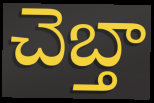
చెబ్తా